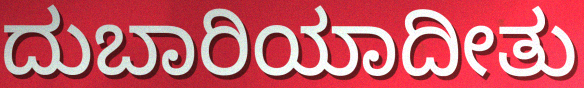
ದುಬಾರಿಯಾದೀತು